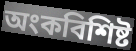
অংকবিশিষ্ট